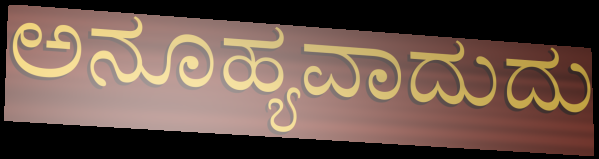
ಅನೂಹ್ಯವಾದುದು